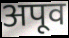
अपूव